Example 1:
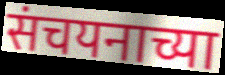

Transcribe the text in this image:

संचयनाच्या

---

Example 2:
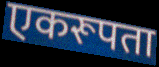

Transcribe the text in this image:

एकरूपता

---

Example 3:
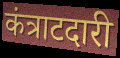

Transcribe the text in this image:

कंत्राटदारी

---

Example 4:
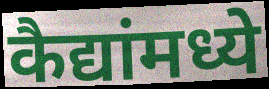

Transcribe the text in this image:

कैद्यांमध्ये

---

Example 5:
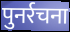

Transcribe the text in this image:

पुनर्रचना